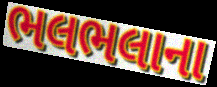
ભલભલાના